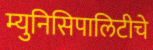
म्युनिसिपालिटीचे